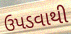
ઉપડવાથી